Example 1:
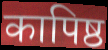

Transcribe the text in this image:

कापिष्ठ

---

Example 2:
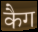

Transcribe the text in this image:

कैग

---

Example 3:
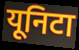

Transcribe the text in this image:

यूनिटा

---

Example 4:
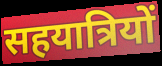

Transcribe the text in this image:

सहयात्रियों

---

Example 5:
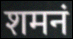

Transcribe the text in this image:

शमनं